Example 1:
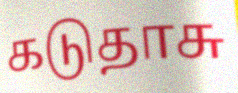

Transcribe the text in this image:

கடுதாசு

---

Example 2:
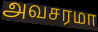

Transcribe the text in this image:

அவசரமா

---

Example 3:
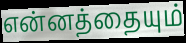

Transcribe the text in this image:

என்னத்தையும்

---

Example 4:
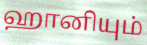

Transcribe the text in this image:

ஹானியும்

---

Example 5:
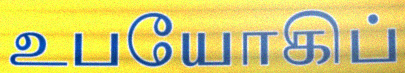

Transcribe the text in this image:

உபயோகிப்